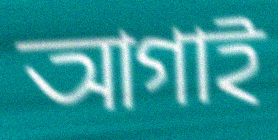
আগাই